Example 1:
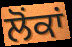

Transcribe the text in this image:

ਲੋਂਕਾਂ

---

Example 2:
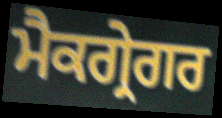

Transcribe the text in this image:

ਮੈਕਗ੍ਰੇਗਰ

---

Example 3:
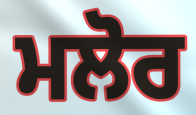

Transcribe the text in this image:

ਮਲੋਰ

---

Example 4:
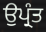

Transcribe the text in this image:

ਉਪ੍ਰ੍ਰੰਤ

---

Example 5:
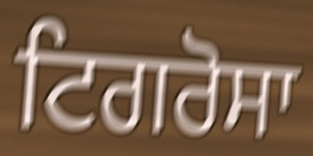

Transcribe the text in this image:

ਟਿਗਰੋਸਾ